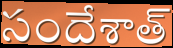
సందేశాత్